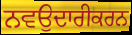
ਨਵਉਦਾਰੀਕਰਨ